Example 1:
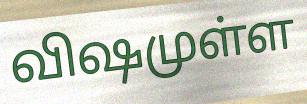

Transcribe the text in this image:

விஷமுள்ள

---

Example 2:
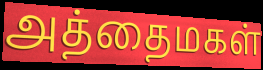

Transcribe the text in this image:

அத்தைமகள்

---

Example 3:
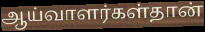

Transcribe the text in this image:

ஆய்வாளர்கள்தான்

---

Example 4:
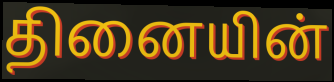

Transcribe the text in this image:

தினையின்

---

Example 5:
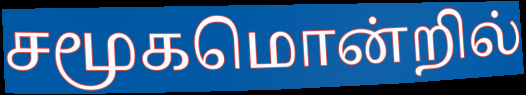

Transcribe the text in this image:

சமூகமொன்றில்